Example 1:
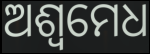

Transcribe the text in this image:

ଅଶ୍ବମେଧ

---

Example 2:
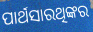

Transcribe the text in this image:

ପାର୍ଥସାରଥିଙ୍କର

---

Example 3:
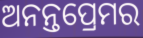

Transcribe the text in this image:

ଅନନ୍ତପ୍ରେମର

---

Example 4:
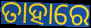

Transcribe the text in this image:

ତାହାରେ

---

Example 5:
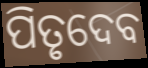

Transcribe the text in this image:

ପିତୃଦେବ